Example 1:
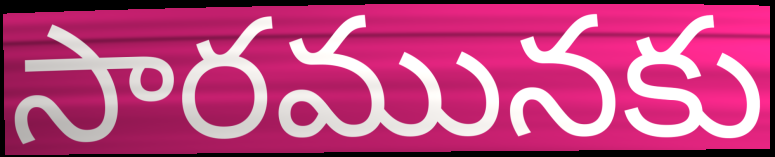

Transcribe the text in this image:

సారమునకు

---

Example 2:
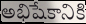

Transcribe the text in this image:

అభిషేకానికి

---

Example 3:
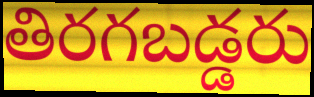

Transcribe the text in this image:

తిరగబడ్డరు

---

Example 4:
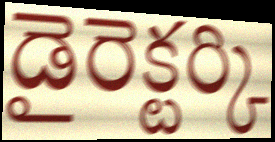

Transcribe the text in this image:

డైరెక్టర్కి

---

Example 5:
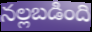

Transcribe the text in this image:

నల్లబడింది